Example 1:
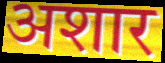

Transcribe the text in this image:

अशार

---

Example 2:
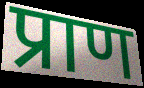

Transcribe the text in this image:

प्राण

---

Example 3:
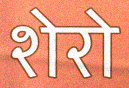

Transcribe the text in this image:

शेरो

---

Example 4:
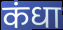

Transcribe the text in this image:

कंधा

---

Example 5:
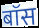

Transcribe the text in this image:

बॉस